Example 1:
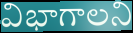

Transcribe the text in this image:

విభాగాలని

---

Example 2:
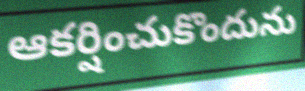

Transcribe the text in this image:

ఆకర్షించుకొందును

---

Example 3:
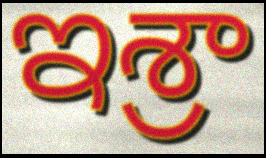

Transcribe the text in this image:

ఇశ్రా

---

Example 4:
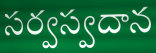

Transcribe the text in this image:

సర్వస్వదాన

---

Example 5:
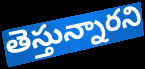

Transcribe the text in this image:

తెస్తున్నారని